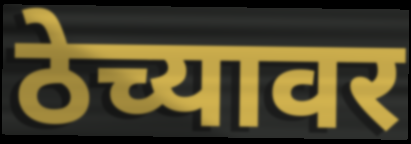
ठेच्यावर